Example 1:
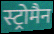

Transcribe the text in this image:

स्ट्रोमैन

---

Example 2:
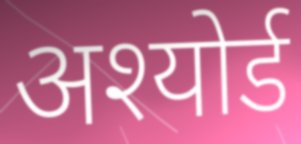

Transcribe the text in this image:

अश्योर्ड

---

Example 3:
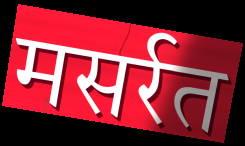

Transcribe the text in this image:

मसर्रत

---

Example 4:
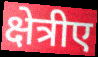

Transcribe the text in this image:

क्षेत्रीए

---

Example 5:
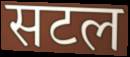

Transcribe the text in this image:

सटल